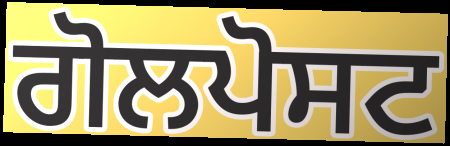
ਗੋਲਪੋਸਟ